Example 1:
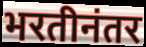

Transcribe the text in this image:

भरतीनंतर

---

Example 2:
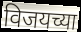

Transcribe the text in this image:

विजयच्या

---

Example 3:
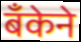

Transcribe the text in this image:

बँकेने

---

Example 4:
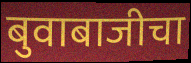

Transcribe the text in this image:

बुवाबाजीचा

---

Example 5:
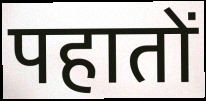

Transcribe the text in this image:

पहातों